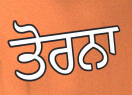
ਤੋਰਨਾ